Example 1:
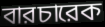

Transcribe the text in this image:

বারচারেক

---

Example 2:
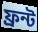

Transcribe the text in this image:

ফ্রন্ট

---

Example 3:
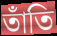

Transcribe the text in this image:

তাঁতি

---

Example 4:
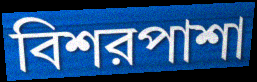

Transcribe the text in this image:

বিশরপাশা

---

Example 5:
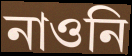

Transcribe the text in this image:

নাওনি